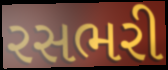
રસભરી